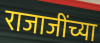
राजाजींच्या